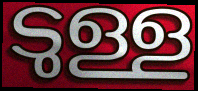
ടുള്ള